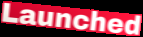
Launched